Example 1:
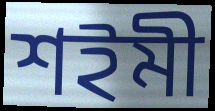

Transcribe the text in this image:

শইমী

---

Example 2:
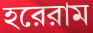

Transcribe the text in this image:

হরেরাম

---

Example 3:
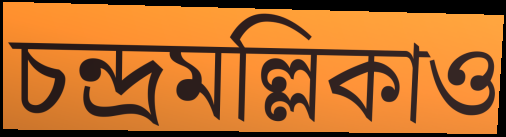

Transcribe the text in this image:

চন্দ্রমল্লিকাও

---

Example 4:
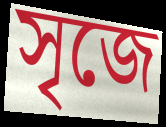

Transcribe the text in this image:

সৃজে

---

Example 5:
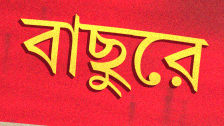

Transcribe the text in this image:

বাছুরে